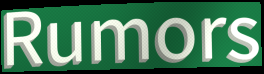
Rumors